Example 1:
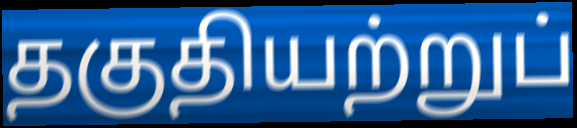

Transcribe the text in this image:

தகுதியற்றுப்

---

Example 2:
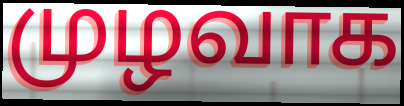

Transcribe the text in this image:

முழவாக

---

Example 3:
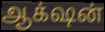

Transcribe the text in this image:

ஆக்‌ஷன்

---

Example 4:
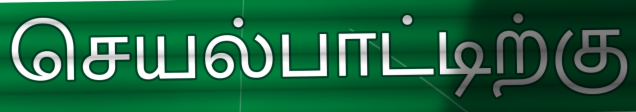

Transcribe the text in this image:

செயல்பாட்டிற்கு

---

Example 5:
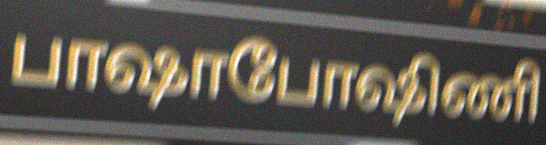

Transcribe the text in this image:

பாஷாபோஷிணி